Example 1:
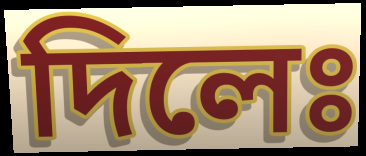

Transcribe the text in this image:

দিলেঃ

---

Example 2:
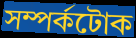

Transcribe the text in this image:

সম্পৰ্কটোক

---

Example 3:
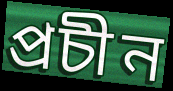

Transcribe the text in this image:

প্ৰচীন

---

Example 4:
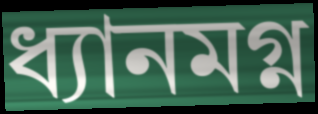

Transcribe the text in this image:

ধ্যানমগ্ন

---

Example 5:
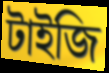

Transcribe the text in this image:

টাইজি